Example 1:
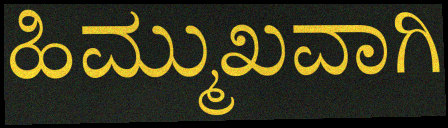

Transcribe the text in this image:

ಹಿಮ್ಮುಖವಾಗಿ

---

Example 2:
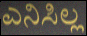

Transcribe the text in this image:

ಎನಿಸಿಲ್ಲ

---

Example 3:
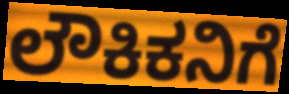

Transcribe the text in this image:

ಲೌಕಿಕನಿಗೆ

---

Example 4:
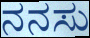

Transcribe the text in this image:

ನನಸು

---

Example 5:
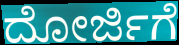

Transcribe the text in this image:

ದೋರ್ಜಿಗೆ